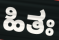
ಹಿತಃ